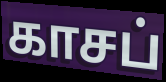
காசப்